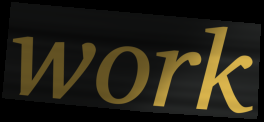
work